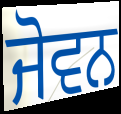
ਜੋਵਨ